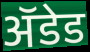
ॲडेड